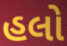
હલો